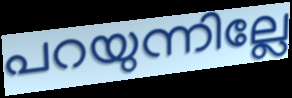
പറയുന്നില്ലേ